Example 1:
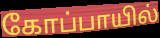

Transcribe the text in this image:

கோப்பாயில்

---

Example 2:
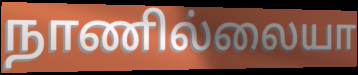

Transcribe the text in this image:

நாணில்லையா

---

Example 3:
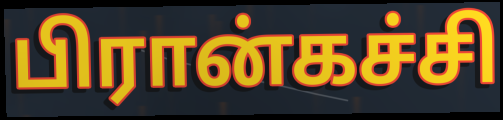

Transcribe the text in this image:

பிரான்கச்சி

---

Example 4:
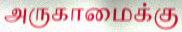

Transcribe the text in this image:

அருகாமைக்கு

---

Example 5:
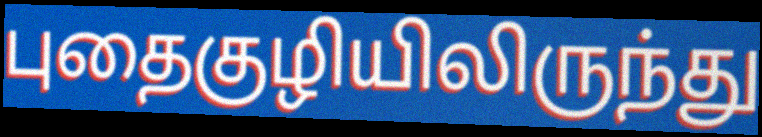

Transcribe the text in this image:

புதைகுழியிலிருந்து